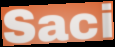
Saci